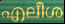
എലീശ